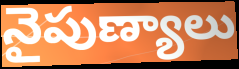
నైపుణ్యాలు